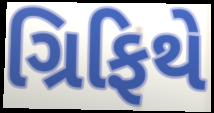
ગ્રિફિથે